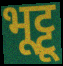
भूट्टू